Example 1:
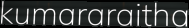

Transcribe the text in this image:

kumararaitha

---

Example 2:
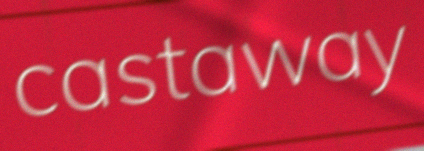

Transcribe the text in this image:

castaway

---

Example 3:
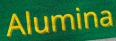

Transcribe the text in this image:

Alumina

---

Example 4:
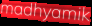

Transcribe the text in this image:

madhyamik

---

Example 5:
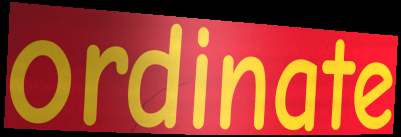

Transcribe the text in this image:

ordinate